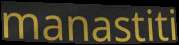
manastiti